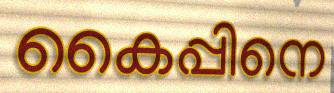
കൈപ്പിനെ